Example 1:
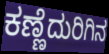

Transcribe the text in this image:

ಕಣ್ಣೆದುರಿಗಿನ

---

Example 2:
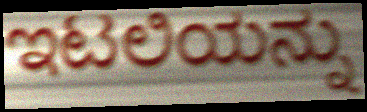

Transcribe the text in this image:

ಇಟಲಿಯನ್ನು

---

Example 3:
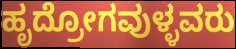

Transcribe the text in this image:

ಹೃದ್ರೋಗವುಳ್ಳವರು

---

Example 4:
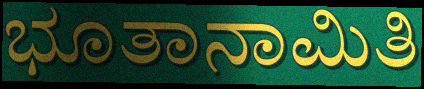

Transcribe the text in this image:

ಭೂತಾನಾಮಿತಿ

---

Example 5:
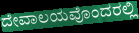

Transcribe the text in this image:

ದೇವಾಲಯವೊಂದರಲ್ಲಿ